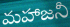
మహాజనీ